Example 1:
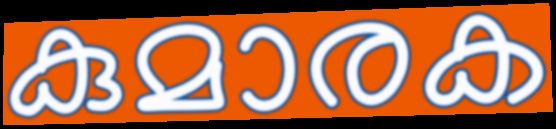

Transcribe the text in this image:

കുമാരക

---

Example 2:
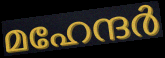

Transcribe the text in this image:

മഹേന്ദർ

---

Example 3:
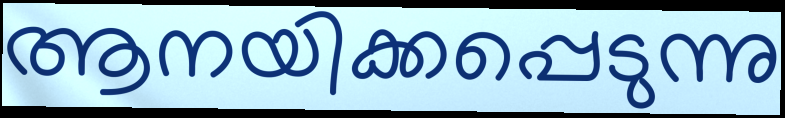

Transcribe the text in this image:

ആനയിക്കപ്പെടുന്നു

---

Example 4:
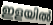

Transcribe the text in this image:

ഇളയിൽ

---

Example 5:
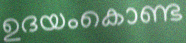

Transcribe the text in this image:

ഉദയംകൊണ്ട